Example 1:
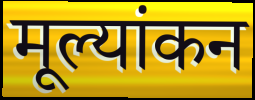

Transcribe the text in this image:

मूल्यांकन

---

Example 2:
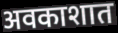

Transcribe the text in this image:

अवकाशात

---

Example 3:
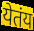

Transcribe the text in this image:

येतंय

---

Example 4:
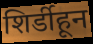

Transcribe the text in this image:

शिर्डीहून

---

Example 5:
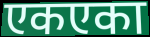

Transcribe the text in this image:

एकएका